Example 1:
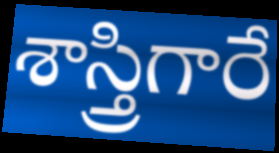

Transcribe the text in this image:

శాస్త్రిగారే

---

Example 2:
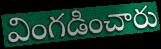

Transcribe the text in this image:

వింగడించారు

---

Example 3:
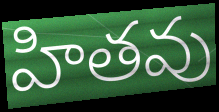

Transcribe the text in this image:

హితవు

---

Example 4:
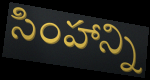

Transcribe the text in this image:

సింహాన్ని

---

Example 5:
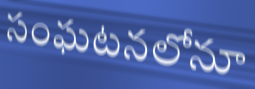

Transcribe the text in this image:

సంఘటనలోనూ